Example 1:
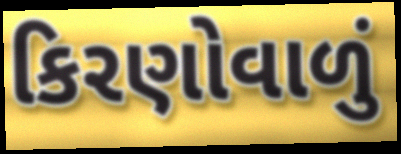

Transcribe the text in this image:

કિરણોવાળું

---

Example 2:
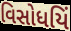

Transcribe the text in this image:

વિસોધયિં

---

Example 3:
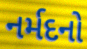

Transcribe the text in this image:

નર્મદનો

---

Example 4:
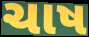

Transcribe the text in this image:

ચાષ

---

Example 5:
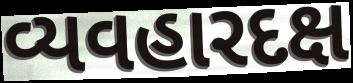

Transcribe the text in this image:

વ્યવહારદક્ષ